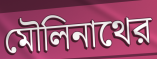
মৌলিনাথের